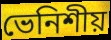
ভেনিশীয়